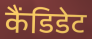
कैंडिडेट